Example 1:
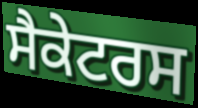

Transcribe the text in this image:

ਸੈਕੇਟਰਸ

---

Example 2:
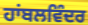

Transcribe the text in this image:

ਹਾਂਬਲਵਿੰਦਰ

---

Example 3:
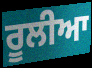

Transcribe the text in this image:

ਰੂਲੀਆ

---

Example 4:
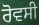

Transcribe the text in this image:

ਰੋਵਸੀ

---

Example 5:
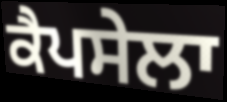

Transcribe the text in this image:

ਕੈਪਸੇਲਾ